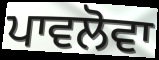
ਪਾਵਲੋਵਾ